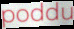
poddu